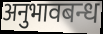
अनुभावबन्ध